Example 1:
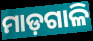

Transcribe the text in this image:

ମାଡ଼ଗାଳି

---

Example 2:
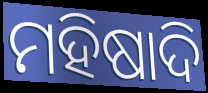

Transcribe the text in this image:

ମହିଷାଦି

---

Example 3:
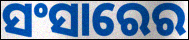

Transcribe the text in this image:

ସଂସାରେର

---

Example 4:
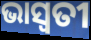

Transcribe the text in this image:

ଭାସ୍ଵତୀ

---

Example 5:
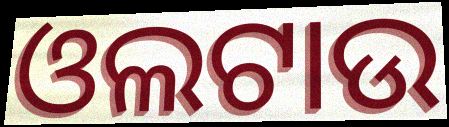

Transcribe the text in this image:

ଓଲଟାଉ